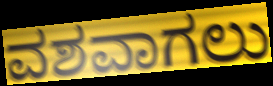
ವಶವಾಗಲು